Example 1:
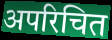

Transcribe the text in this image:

अपरिचित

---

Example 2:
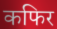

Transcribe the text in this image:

कफिर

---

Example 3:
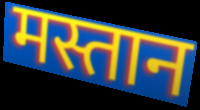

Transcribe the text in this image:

मस्तान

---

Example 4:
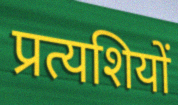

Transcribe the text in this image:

प्रत्यशियों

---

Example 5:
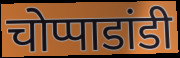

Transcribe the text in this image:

चोप्पाडांडी